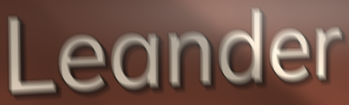
Leander